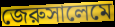
জেরুসালেমে